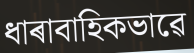
ধাৰাবাহিকভাৱে